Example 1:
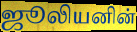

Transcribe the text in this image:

ஜூலியனின்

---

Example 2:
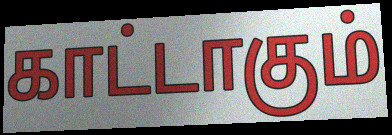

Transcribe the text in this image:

காட்டாகும்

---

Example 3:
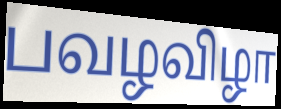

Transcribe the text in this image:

பவழவிழா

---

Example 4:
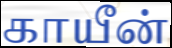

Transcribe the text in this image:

காயீன்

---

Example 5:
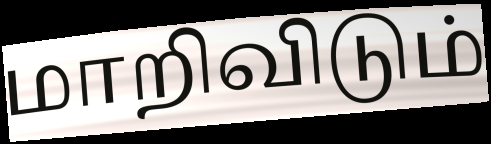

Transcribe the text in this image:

மாறிவிடும்